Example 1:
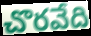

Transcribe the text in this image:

చొరవేది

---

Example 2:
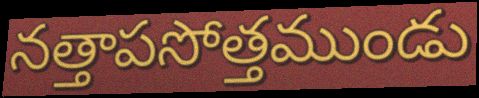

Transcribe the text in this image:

నత్తాపసోత్తముండు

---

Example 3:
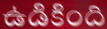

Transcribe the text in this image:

ఉడికింది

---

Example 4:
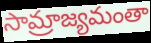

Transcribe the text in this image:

సామ్రాజ్యమంతా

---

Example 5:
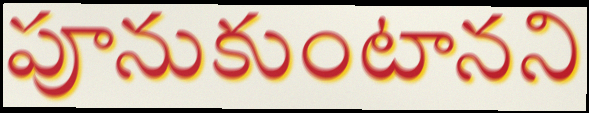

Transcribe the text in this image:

పూనుకుంటానని